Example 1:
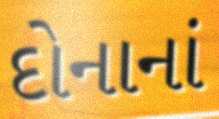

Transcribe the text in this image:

દોનાનાં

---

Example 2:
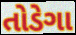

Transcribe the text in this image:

તોડેગા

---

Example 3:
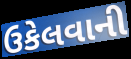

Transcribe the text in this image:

ઉકેલવાની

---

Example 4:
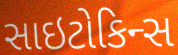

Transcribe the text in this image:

સાઇટોકિન્સ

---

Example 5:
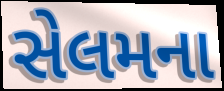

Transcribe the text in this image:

સેલમના